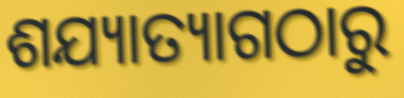
ଶଯ୍ୟାତ୍ୟାଗଠାରୁ